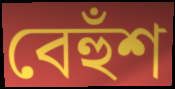
বেহুঁশ